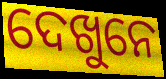
ଦେଖୁନେ